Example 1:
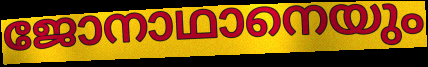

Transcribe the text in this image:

ജോനാഥാനെയും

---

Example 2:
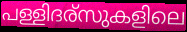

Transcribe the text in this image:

പള്ളിദര്സുകളിലെ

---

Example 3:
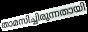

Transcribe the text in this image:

താമസിച്ചിരുന്നതായി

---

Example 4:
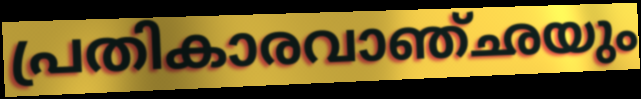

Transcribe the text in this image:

പ്രതികാരവാഞ്ഛയും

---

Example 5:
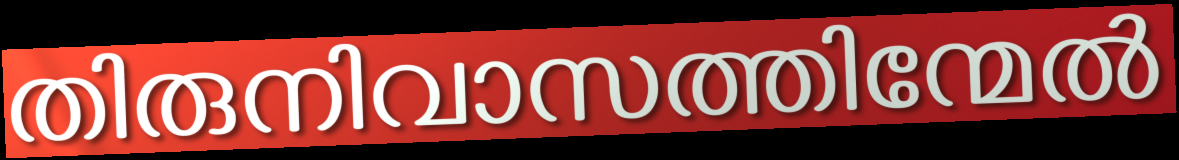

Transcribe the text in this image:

തിരുനിവാസത്തിന്മേൽ